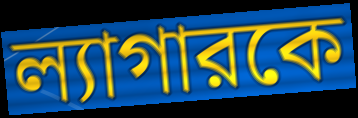
ল্যাগারকে